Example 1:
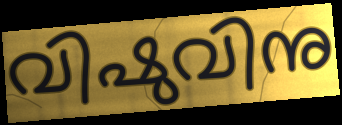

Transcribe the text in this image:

വിഷുവിനു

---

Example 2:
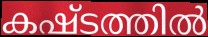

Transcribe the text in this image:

കഷ്ടത്തിൽ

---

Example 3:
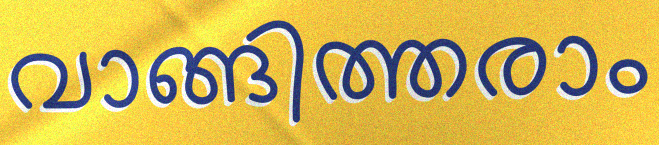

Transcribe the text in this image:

വാങ്ങിത്തരാം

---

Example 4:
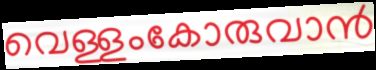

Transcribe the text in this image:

വെള്ളംകോരുവാൻ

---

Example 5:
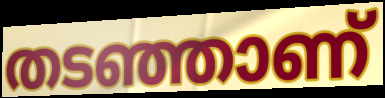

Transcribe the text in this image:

തടഞ്ഞാണ്